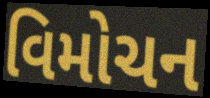
વિમોચન